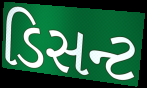
ડિસન્ટ